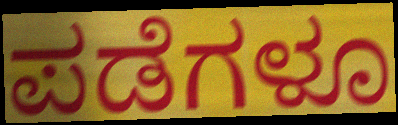
ಪಡೆಗಳೂ